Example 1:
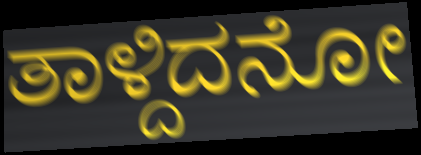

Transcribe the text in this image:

ತಾಳ್ದಿದನೋ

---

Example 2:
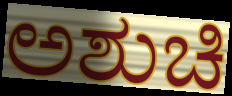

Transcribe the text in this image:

ಅಶುಚಿ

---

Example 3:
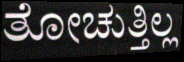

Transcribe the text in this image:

ತೋಚುತ್ತಿಲ್ಲ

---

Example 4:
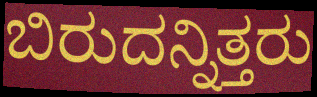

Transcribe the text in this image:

ಬಿರುದನ್ನಿತ್ತರು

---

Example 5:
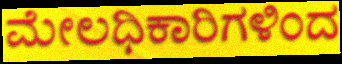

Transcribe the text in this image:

ಮೇಲಧಿಕಾರಿಗಳಿಂದ